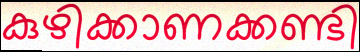
കുഴിക്കാണക്കണ്ടി